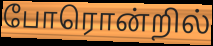
போரொன்றில்